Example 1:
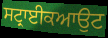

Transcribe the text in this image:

ਸਟ੍ਰਾਈਕਆਉਟ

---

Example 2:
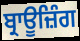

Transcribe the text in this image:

ਬ੍ਰਾਊਜ਼ਿੰਗ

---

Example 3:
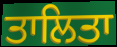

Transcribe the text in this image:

ਤਾਲਿਤਾ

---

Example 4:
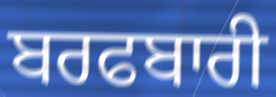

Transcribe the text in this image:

ਬਰਫਬਾਰੀ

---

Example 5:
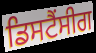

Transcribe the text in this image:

ਡਿਸਟੈਂਸੀਗ